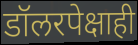
डॉलरपेक्षाही